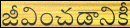
జీవించడానికీ